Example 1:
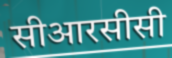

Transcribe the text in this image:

सीआरसीसी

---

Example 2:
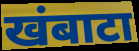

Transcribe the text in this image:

खंबाटा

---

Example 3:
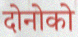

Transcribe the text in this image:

दोनोको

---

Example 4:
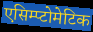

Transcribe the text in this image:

एसिम्प्टोमेटिक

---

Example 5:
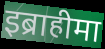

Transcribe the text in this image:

इब्राहीमा